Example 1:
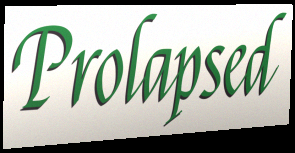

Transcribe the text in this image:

Prolapsed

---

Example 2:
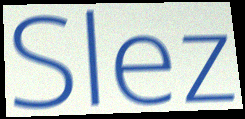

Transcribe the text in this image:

Slez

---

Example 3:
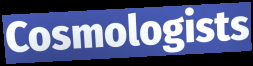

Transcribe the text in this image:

Cosmologists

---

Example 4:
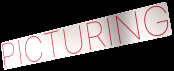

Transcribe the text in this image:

PICTURING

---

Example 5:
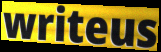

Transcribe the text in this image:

writeus